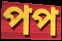
পপ